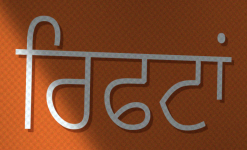
ਰਿਫਟਾਂ